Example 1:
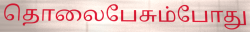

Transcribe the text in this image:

தொலைபேசும்போது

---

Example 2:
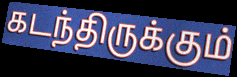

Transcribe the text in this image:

கடந்திருக்கும்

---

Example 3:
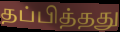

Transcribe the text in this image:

தப்பித்தது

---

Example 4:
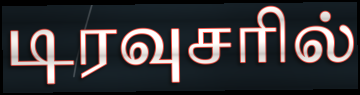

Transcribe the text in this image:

டிரவுசரில்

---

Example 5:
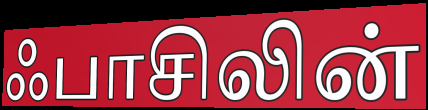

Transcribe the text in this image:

ஃபாசிலின்